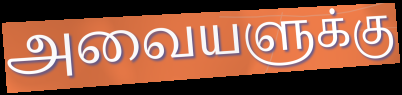
அவையளுக்கு